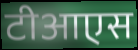
टीआएस